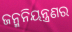
ଜନ୍ମନିୟନ୍ତ୍ରଣର